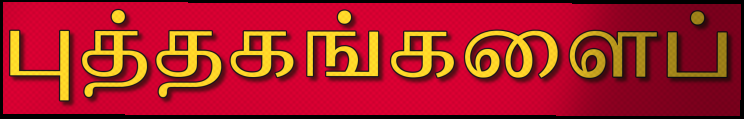
புத்தகங்களைப்